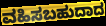
ವಹಿಸಬಹುದಾದ